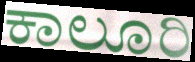
ಕಾಲೂರಿ